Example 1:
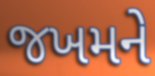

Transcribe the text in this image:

જખમને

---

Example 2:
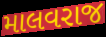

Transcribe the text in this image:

માલવરાજ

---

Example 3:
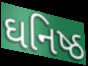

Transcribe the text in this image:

ઘનિષ્ઠ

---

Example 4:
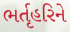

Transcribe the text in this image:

ભર્તૃહરિને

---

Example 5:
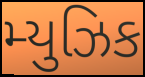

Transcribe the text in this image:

મ્યુઝિક